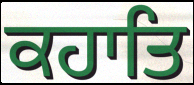
ਕਹਾਤਿ